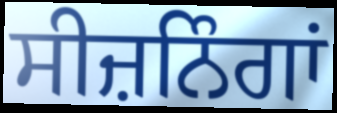
ਸੀਜ਼ਨਿੰਗਾਂ